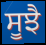
ਸੂਝੈ